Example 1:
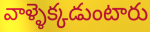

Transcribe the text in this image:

వాళ్ళెక్కడుంటారు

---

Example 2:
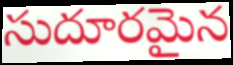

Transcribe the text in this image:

సుదూరమైన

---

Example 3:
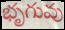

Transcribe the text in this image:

భృగువు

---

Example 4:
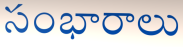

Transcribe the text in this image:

సంభారాలు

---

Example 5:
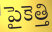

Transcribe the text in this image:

పైకెత్తి